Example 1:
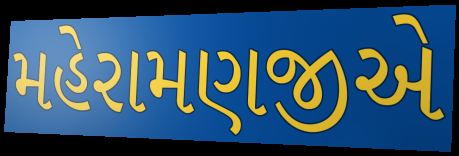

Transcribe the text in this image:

મહેરામણજીએ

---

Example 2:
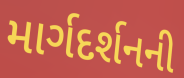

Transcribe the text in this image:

માર્ગદર્શનની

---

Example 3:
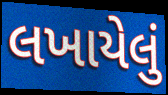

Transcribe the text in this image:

લખાયેલું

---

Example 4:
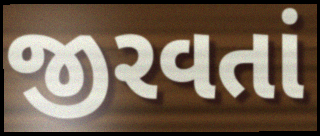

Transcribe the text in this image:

જીરવતાં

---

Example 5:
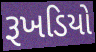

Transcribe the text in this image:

રૂખડિયો